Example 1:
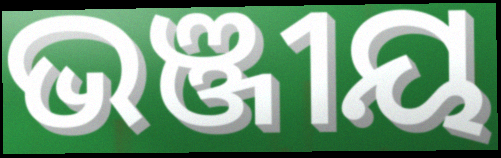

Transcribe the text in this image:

ଭଞ୍ଜୀୟ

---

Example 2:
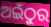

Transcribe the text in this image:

ଅଇଁଠୁର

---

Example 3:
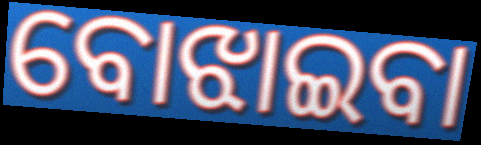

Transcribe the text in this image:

ବୋଝାଇବା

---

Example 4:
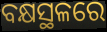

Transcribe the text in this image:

ବକ୍ଷସ୍ଥଳରେ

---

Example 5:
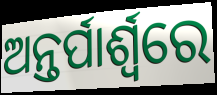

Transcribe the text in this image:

ଅନ୍ତର୍ପାର୍ଶ୍ୱରେ